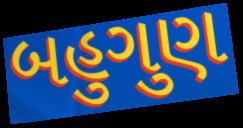
બહુગુણ